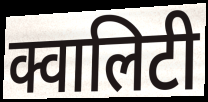
क्वालिटी